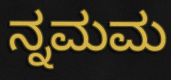
ನ್ನಮಮ